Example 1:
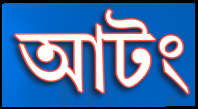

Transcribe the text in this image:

আটং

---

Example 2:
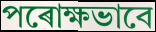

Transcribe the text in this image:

পৰোক্ষভাবে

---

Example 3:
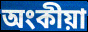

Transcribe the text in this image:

অংকীয়া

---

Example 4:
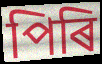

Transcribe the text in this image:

পিৰি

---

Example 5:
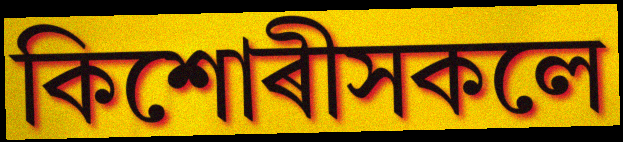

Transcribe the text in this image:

কিশোৰীসকলে